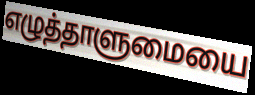
எழுத்தாளுமையை